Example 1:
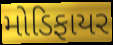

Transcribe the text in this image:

મોડિફાયર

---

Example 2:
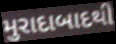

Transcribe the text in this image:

મુરાદાબાદથી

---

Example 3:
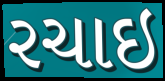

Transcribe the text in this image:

રચાઇ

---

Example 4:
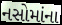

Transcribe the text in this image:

નસોમાંના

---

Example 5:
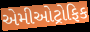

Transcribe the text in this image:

એમીઓટ્રોફિક